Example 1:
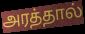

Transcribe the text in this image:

அரத்தால்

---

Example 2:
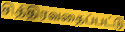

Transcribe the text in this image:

சித்திரவதைப்பட்டு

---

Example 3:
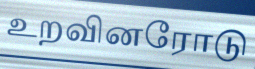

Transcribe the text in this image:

உறவினரோடு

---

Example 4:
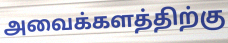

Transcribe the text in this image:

அவைக்களத்திற்கு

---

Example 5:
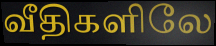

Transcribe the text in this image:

வீதிகளிலே